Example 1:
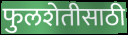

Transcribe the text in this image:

फुलशेतीसाठी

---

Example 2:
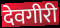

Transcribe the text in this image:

देवगीरी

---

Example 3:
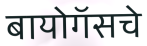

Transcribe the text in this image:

बायोगॅसचे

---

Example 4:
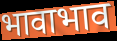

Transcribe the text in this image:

भावाभाव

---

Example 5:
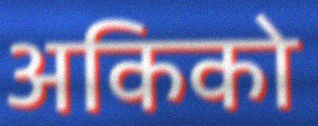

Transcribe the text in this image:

अकिको